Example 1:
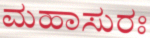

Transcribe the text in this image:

ಮಹಾಸುರಃ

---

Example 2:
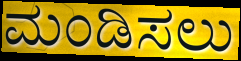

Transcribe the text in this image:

ಮಂಡಿಸಲು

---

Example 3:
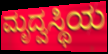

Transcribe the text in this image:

ಮೃದ್ವಸ್ಥಿಯ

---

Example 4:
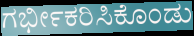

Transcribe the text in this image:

ಗರ್ಭೀಕರಿಸಿಕೊಂಡು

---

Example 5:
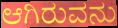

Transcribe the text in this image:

ಆಗಿರುವನು